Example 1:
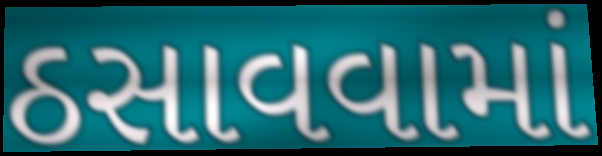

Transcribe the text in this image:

ઠસાવવામાં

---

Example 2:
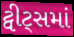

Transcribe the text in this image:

ટ્વીટ્સમાં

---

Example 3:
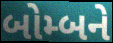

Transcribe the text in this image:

બોમ્બને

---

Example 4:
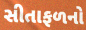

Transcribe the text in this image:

સીતાફળનો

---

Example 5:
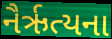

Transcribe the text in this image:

નૈર્ઋત્યના